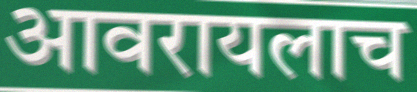
आवरायलाच